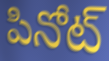
పినోట్